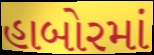
હાબોરમાં